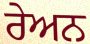
ਰੇਅਨ